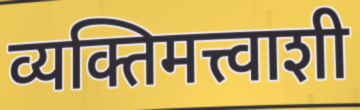
व्यक्तिमत्त्वाशी